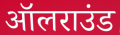
ऑलराउंड